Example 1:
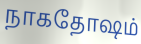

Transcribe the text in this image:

நாகதோஷம்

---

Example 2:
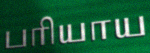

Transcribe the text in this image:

பரியாய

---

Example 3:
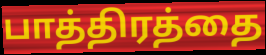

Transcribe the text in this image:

பாத்திரத்தை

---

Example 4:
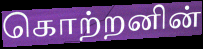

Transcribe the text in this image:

கொற்றனின்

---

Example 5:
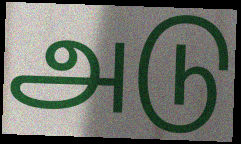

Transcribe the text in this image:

அடு